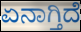
ಏನಾಗ್ತಿದೆ